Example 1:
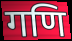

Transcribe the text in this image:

गणि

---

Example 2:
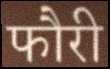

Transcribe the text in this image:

फौरी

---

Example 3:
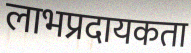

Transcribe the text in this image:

लाभप्रदायकता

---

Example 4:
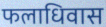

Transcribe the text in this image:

फलाधिवास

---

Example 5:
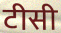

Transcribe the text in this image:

टीसी